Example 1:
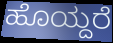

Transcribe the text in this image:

ಹೊಯ್ದರೆ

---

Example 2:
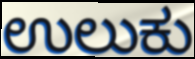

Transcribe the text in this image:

ಉಲುಕು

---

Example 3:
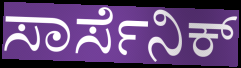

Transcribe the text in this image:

ಸಾರ್ಸೆನಿಕ್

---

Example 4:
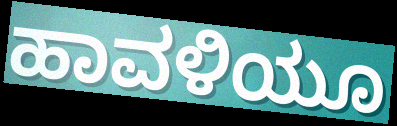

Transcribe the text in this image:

ಹಾವಳಿಯೂ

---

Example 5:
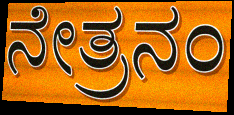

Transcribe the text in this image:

ನೇತ್ರನಂ